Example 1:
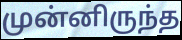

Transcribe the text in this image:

முன்னிருந்த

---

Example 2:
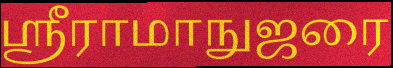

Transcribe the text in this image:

ஸ்ரீராமாநுஜரை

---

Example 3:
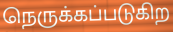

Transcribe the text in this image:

நெருக்கப்படுகிற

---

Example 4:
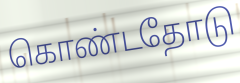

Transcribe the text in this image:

கொண்டதோடு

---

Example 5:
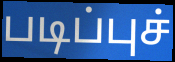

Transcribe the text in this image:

படிப்புச்